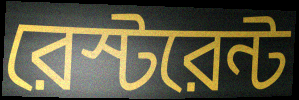
রেস্টরেন্ট